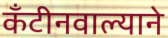
कँटीनवाल्याने